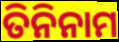
ତିନିନାମ